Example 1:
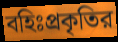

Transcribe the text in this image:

বহিঃপ্রকৃতির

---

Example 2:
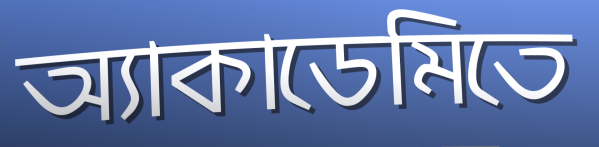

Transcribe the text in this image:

অ্যাকাডেমিতে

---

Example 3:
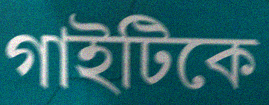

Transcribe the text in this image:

গাইটিকে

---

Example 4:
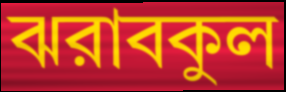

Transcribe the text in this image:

ঝরাবকুল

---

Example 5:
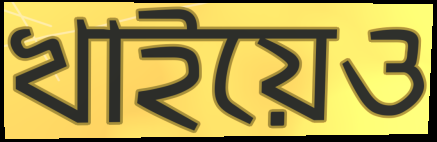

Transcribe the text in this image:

খাইয়েও